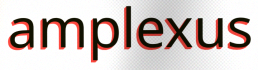
amplexus